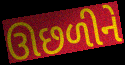
ઊછળીને